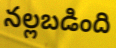
నల్లబడింది